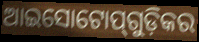
ଆଇସୋଟୋପ୍‌ଗୁଡ଼ିକର